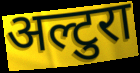
अल्टुरा